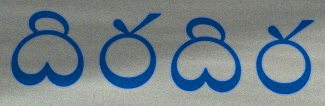
దిరదిర